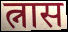
त्नास